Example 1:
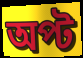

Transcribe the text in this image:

অপ্ট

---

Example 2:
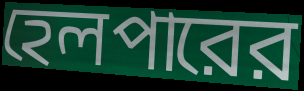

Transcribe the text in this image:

হেলপারের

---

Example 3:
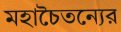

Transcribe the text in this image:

মহাচৈতন্যের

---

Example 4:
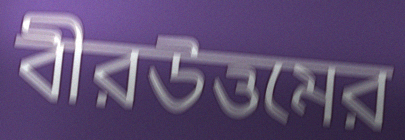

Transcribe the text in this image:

বীরউত্তমের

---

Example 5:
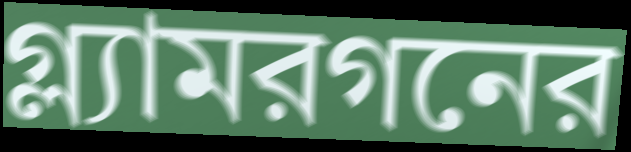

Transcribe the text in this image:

গ্ল্যামরগনের